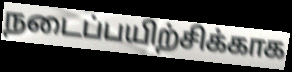
நடைப்பயிற்சிக்காக